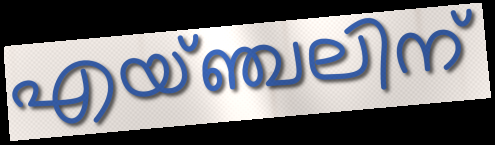
എയ്ഞ്ചലിന്